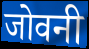
जोवनी